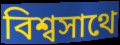
বিশ্বসাথে